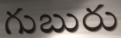
గుబురు